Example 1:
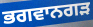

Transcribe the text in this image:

ਭਗਵਾਨਗੜ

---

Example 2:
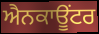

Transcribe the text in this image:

ਐਨਕਾਊਂਟਰ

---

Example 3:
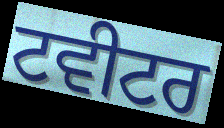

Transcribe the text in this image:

ਟਵੀਟਰ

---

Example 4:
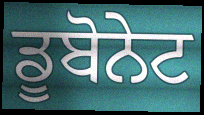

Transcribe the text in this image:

ਡੂਬੋਨੇਟ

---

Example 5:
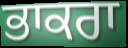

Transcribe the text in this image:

ਭਾਕਰਾ